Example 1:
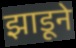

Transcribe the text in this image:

झाडूने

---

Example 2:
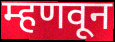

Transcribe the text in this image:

म्हणवून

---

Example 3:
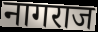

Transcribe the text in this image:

नागराज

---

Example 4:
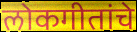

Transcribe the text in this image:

लोकगीतांचे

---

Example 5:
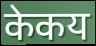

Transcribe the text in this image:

केकय